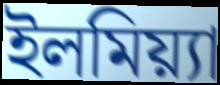
ইলমিয়্যা